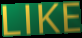
LIKE